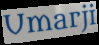
Umarji